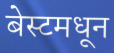
बेस्टमधून